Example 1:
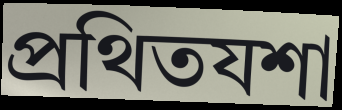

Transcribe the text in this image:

প্রথিতযশা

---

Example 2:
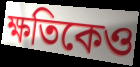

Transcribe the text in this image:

ক্ষতিকেও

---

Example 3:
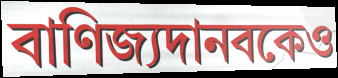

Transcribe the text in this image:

বাণিজ্যদানবকেও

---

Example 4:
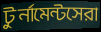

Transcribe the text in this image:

টুর্নামেন্টসেরা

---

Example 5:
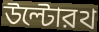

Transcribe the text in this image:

উল্টোরথ